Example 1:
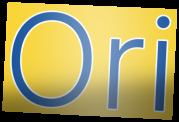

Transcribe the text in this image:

Ori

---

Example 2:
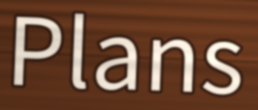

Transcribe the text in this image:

Plans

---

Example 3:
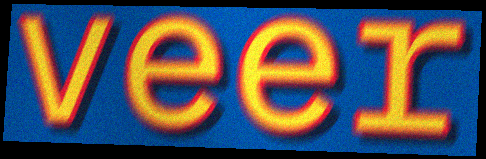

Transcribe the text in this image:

veer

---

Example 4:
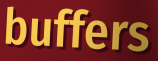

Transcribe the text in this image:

buffers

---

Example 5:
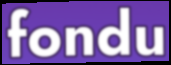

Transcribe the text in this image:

fondu